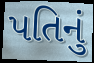
પતિનું